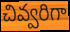
చివ్వరిగా